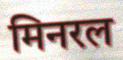
मिनरल